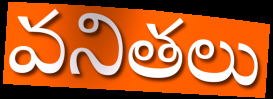
వనితలు